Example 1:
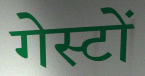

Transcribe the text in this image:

गेस्टों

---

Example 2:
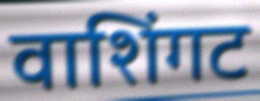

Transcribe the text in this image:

वाशिंगट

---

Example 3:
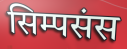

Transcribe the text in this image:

सिम्पसंस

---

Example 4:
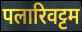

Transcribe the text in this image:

पलारिवट्टम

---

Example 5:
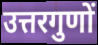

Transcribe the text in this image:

उत्तरगुणों